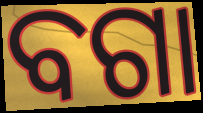
ବଗା